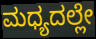
ಮಧ್ಯದಲ್ಲೇ